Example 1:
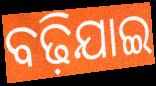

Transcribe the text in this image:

ବଢ଼ିଯାଇ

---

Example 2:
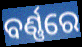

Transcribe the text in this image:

ବର୍ଣ୍ଣରେ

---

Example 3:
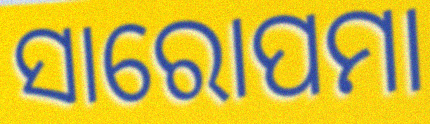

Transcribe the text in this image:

ସାରୋପମା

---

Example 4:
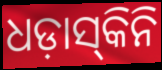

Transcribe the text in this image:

ଧଡ଼ାସ୍‌କିନି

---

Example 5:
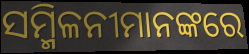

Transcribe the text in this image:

ସମ୍ମିଳନୀମାନଙ୍କରେ